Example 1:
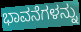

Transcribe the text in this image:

ಭಾವನೆಗಳನ್ನು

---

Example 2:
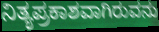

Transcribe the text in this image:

ನಿತ್ಯಪ್ರಕಾಶವಾಗಿರುವನು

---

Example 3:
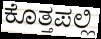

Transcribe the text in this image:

ಕೊತ್ತಪಲ್ಲಿ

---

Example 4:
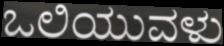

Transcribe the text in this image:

ಒಲಿಯುವಳು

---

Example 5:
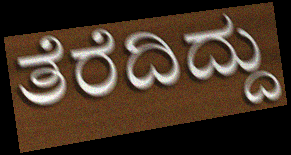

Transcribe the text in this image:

ತೆರೆದಿದ್ದು